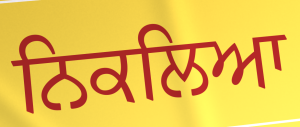
ਨਿਕਲਿਆ